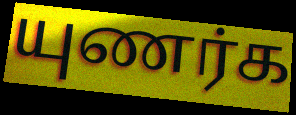
யுணர்க